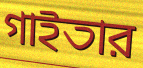
গাইতার